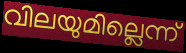
വിലയുമില്ലെന്ന്